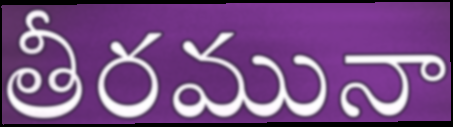
తీరమునా